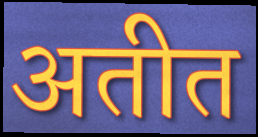
अतीत